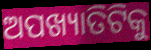
ଅପଖ୍ୟାତିଟିକୁ